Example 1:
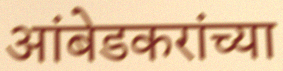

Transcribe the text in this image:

आंबेडकरांच्या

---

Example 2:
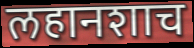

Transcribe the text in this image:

लहानशाच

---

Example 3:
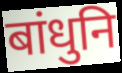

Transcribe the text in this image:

बांधुनि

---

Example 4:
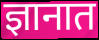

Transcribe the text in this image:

ज्ञानात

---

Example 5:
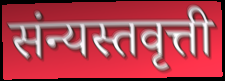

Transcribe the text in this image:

संन्यस्तवृत्ती